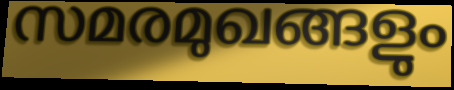
സമരമുഖങ്ങളും